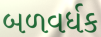
બળવર્ધક